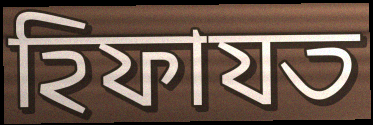
হিফাযত